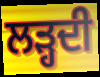
ਲੜ੍ਹਦੀ